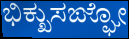
ಭಿಕ್ಖುಸಙ್ಘೋ